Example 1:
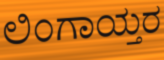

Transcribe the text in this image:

ಲಿಂಗಾಯ್ತರ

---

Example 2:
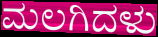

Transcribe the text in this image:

ಮಲಗಿದಳು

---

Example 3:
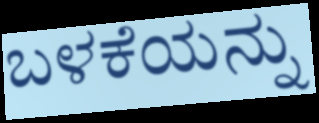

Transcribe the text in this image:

ಬಳಕೆಯನ್ನು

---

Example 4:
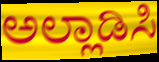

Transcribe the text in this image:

ಅಲ್ಲಾಡಿಸಿ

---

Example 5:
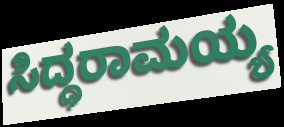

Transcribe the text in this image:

ಸಿದ್ಧರಾಮಯ್ಯ